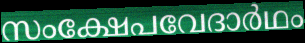
സംക്ഷേപവേദാർഥം